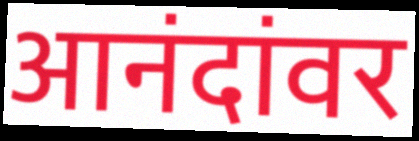
आनंदांवर